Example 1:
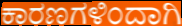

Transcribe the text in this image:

ಕಾರಣಗಳಿಂದಾಗಿ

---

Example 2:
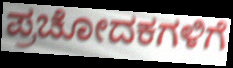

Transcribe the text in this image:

ಪ್ರಚೋದಕಗಳಿಗೆ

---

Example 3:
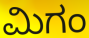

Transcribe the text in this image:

ಮಿಗಂ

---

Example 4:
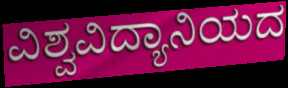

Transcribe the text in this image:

ವಿಶ್ವವಿದ್ಯಾನಿಯದ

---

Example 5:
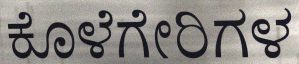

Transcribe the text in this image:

ಕೊಳೆಗೇರಿಗಳ